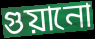
গুয়ানো